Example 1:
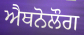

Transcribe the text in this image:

ਐਥਨੋਲੌਗ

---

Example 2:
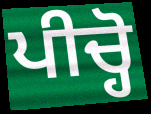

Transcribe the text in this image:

ਪੀਚ੍ਹੋ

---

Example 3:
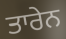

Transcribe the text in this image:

ਤਾਰੇਨ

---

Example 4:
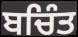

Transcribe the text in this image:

ਬਚਿੰਤ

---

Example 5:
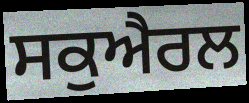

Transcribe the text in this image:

ਸਕੁਐਰਲ